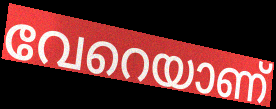
വേറെയാണ്